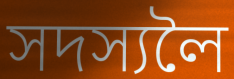
সদস্যলৈ